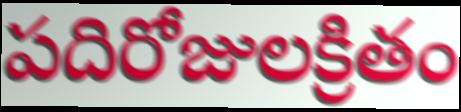
పదిరోజులక్రితం